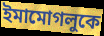
ইমামোগলুকে